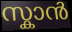
സ്കാൻ